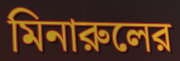
মিনারুলের